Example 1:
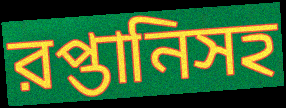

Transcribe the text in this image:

রপ্তানিসহ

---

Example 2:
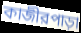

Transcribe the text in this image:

কাজীরপাড়া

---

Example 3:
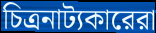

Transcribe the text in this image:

চিত্রনাট্যকারেরা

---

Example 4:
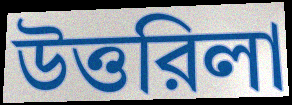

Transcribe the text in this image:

উত্তরিলা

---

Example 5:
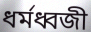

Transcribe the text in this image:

ধর্মধ্বজী